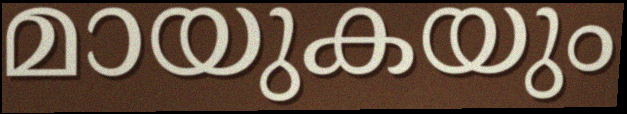
മായുകയും